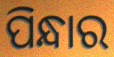
ପିନ୍ଧାର